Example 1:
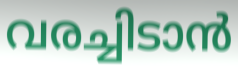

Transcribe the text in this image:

വരച്ചിടാൻ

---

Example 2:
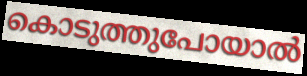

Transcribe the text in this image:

കൊടുത്തുപോയാൽ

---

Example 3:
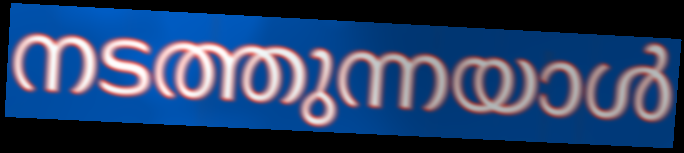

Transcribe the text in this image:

നടത്തുന്നയാൾ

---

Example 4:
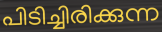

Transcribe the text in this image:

പിടിച്ചിരിക്കുന്ന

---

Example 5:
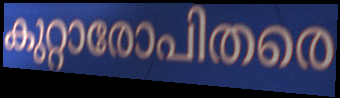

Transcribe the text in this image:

കുറ്റാരോപിതരെ